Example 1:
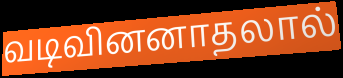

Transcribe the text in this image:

வடிவினனாதலால்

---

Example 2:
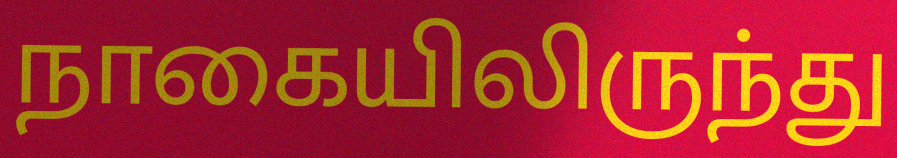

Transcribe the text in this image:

நாகையிலிருந்து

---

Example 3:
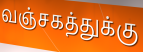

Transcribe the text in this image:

வஞ்சகத்துக்கு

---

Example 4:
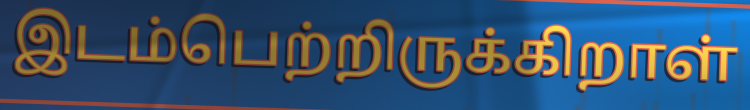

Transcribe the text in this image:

இடம்பெற்றிருக்கிறாள்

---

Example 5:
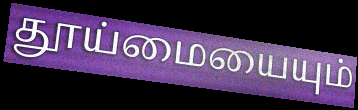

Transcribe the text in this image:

தூய்மையையும்